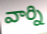
వార్ని